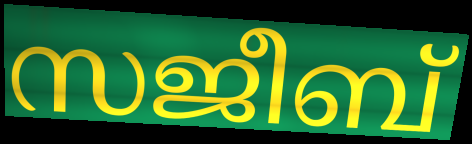
സജീബ്